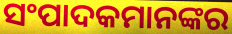
ସଂପାଦକମାନଙ୍କର